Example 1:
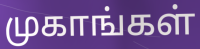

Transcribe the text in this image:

முகாங்கள்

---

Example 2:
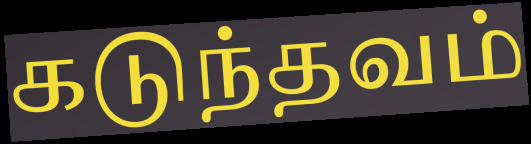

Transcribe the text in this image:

கடுந்தவம்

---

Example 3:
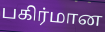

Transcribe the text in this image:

பகிர்மான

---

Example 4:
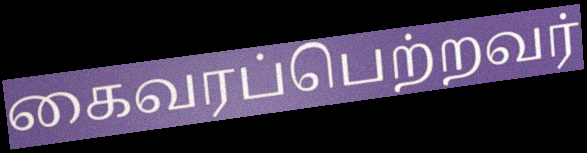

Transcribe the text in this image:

கைவரப்பெற்றவர்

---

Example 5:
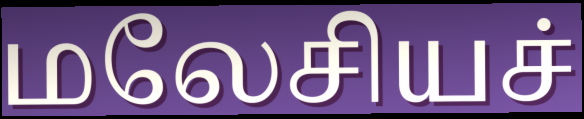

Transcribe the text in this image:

மலேசியச்